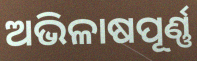
ଅଭିଳାଷପୂର୍ଣ୍ଣ